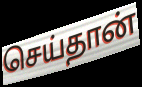
செய்தான்